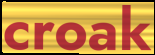
croak